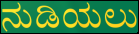
ನುಡಿಯಲು